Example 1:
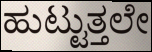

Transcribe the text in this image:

ಹುಟ್ಟುತ್ತಲೇ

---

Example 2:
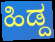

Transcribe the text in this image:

ಹಿಡ್ದ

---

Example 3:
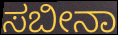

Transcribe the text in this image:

ಸಬೀನಾ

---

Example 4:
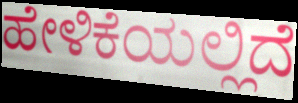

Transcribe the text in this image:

ಹೇಳಿಕೆಯಲ್ಲಿದೆ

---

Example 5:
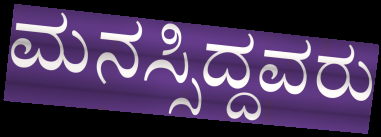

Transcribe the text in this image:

ಮನಸ್ಸಿದ್ದವರು